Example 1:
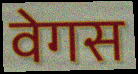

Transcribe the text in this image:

वेगस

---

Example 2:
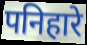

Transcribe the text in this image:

पनिहारे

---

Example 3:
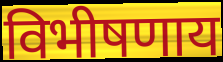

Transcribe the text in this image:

विभीषणाय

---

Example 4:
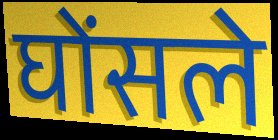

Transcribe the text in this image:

घोंसले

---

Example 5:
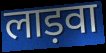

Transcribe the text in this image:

लाड़वा